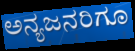
ಅನ್ಯಜನರಿಗೂ